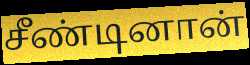
சீண்டினான்